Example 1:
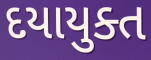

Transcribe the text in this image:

દયાયુક્ત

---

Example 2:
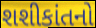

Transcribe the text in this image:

શશીકાંતનો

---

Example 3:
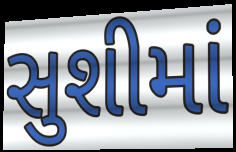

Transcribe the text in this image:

સુશીમાં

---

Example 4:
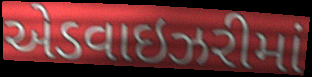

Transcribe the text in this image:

એડવાઇઝરીમાં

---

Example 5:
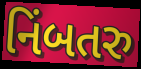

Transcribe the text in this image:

નિંબતરુ